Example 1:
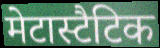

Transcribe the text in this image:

मेटास्टैटिक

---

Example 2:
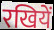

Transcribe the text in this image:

रखियें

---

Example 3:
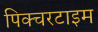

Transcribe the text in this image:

पिक्चरटाइम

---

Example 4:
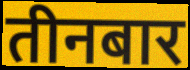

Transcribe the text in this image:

तीनबार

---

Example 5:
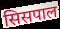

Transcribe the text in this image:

सिसपाल